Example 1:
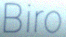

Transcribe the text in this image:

Biro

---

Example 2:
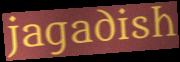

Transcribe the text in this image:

jagadish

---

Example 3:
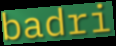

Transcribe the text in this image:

badri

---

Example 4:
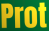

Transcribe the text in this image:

Prot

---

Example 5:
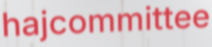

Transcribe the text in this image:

hajcommittee